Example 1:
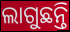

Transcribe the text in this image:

ଲାଗୁଛନ୍ତି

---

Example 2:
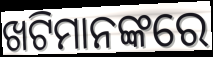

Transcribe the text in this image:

ଖଟିମାନଙ୍କରେ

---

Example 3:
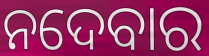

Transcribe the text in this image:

ନଦେବାର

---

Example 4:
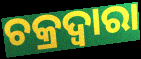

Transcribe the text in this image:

ଚକ୍ରଦ୍ୱାରା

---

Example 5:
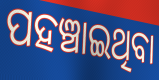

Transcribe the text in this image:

ପହଞ୍ଚାଇଥିବା